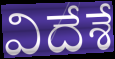
విదేశే